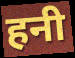
हनी